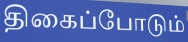
திகைப்போடும்